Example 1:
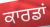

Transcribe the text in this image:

ਕਾਰਡਾਂ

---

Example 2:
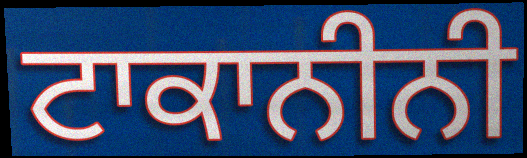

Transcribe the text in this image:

ਟਾਕਾਨੀਨੀ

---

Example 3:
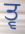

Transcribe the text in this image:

ਤ੍ਵ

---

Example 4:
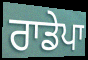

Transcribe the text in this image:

ਰਾਡੇਪਾ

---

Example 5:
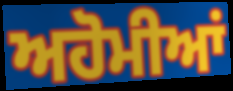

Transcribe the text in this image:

ਅਹੋਮੀਆਂ